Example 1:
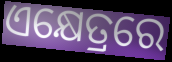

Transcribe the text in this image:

ଏକ୍ଷେତ୍ରରେ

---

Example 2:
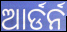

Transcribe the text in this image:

ଆର୍ଡର୍ନ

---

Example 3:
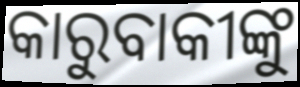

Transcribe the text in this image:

କାରୁବାକୀଙ୍କୁ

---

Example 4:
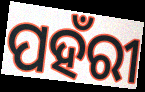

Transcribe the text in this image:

ପହଁରୀ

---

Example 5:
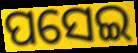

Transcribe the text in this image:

ପସେଇ